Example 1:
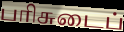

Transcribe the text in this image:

பரிசுடைப்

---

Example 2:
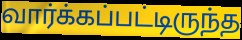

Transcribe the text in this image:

வார்க்கப்பட்டிருந்த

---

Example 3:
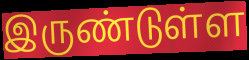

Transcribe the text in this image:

இருண்டுள்ள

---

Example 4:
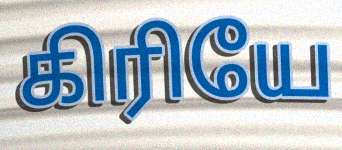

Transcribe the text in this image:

கிரியே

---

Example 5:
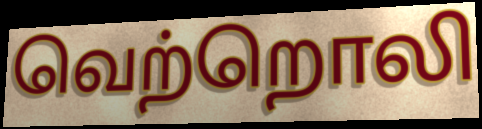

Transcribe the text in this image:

வெற்றொலி